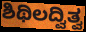
ಶಿಥಿಲದ್ವಿತ್ವ